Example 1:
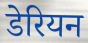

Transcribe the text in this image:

डेरियन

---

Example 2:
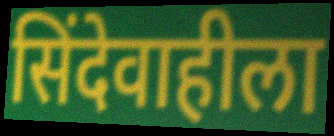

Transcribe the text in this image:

सिंदेवाहीला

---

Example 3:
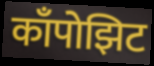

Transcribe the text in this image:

काँपोझिट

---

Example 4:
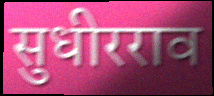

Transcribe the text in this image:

सुधीरराव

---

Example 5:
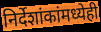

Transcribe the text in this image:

निर्देशांकांमध्येही